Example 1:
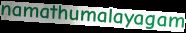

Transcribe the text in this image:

namathumalayagam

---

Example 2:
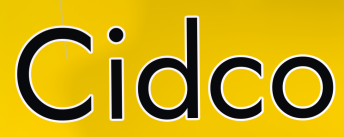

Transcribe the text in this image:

Cidco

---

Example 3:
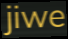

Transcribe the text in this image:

jiwe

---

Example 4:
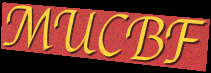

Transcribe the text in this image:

MUCBF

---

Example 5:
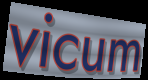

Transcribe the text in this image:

vicum